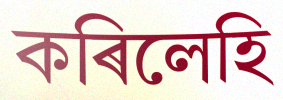
কৰিলেহি